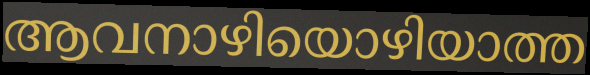
ആവനാഴിയൊഴിയാത്ത